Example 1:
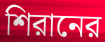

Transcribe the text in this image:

শিরানের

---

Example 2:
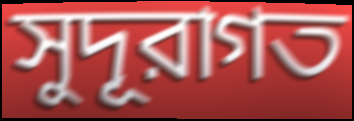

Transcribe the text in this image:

সুদূরাগত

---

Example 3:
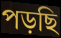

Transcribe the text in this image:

পড়ছি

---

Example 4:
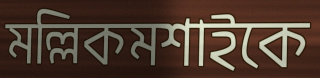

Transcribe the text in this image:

মল্লিকমশাইকে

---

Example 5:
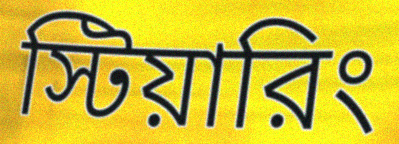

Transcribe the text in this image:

স্টিয়ারিং